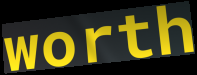
worth